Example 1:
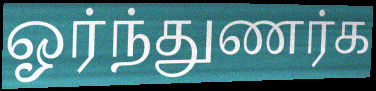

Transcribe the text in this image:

ஓர்ந்துணர்க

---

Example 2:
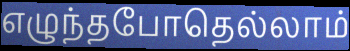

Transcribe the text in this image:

எழுந்தபோதெல்லாம்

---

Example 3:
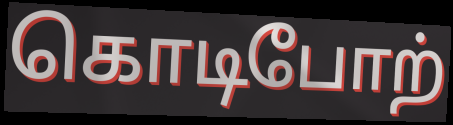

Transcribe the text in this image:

கொடிபோற்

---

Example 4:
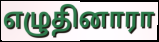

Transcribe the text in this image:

எழுதினாரா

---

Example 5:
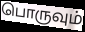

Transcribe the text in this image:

பொருவும்